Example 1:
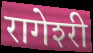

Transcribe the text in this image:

रागेश्री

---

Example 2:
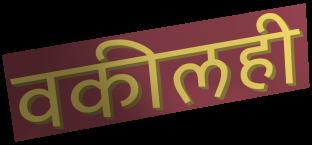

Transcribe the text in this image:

वकीलही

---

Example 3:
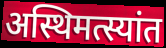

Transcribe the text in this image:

अस्थिमत्स्यांत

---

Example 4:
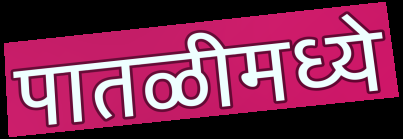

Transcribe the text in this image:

पातळीमध्ये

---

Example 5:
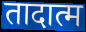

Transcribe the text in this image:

तादात्म